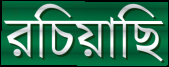
রচিয়াছি